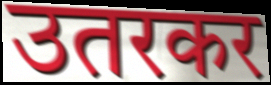
उतरकर